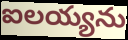
ఐలయ్యను